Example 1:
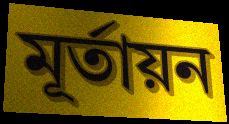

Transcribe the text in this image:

মূর্তায়ন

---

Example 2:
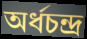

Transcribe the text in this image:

অর্ধচন্দ্র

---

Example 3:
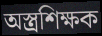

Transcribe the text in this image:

অস্ত্রশিক্ষক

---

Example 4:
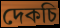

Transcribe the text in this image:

দেকচি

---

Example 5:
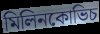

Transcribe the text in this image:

মিলিনকোভিচ